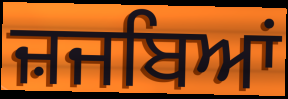
ਜ਼ਜਬਿਆਂ